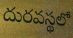
దురవస్థలో